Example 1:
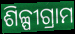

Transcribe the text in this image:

ଶିଳ୍ପୀଗ୍ରାମ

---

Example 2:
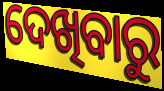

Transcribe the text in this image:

ଦେଖିବାରୁ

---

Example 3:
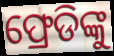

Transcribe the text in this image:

ଫ୍ରେଡିଙ୍କୁ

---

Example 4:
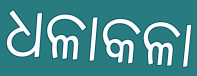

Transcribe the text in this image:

ଧଳାକଳା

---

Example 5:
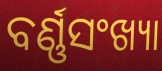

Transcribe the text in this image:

ବର୍ଣ୍ଣସଂଖ୍ୟା